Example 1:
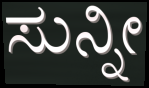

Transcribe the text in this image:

ಸುನ್ನೀ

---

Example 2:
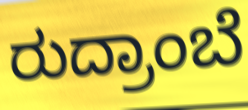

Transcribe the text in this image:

ರುದ್ರಾಂಬೆ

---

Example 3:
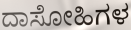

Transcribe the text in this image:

ದಾಸೋಹಿಗಳ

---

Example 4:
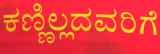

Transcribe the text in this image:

ಕಣ್ಣಿಲ್ಲದವರಿಗೆ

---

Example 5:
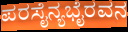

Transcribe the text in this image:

ಪರಸೈನ್ಯಭೈರವನ